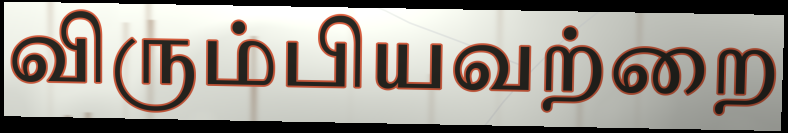
விரும்பியவற்றை